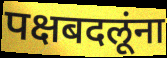
पक्षबदलूंना